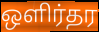
ஒளிர்தர